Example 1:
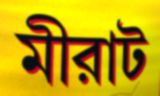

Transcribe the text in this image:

মীরাট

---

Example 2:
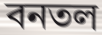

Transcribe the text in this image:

বনতল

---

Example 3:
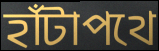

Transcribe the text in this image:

হাঁটাপথে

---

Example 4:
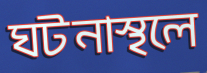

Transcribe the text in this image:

ঘটনাস্থলে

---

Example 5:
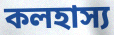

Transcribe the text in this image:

কলহাস্য